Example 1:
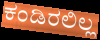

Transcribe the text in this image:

ಕಂಡಿರಲಿಲ್ಲ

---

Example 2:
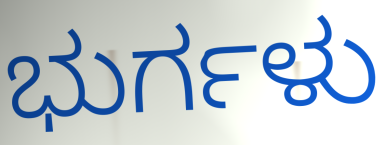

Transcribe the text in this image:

ಭುರ್ಗಳು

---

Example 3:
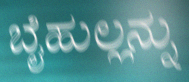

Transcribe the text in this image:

ಬೈಹುಲ್ಲನ್ನು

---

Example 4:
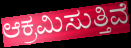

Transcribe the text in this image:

ಆಕ್ರಮಿಸುತ್ತಿವೆ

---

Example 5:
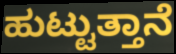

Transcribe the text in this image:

ಹುಟ್ಟುತ್ತಾನೆ